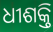
ଧୀଶକ୍ତି